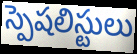
స్పెషలిస్టులు